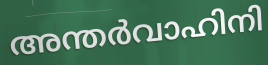
അന്തർവാഹിനി